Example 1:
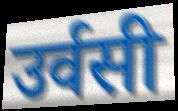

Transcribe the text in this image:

उर्वसी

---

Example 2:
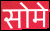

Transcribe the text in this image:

सोमे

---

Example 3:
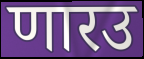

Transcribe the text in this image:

णारउ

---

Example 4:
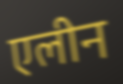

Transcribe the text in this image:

एलीन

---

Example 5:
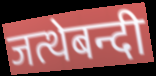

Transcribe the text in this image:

जत्थेबन्दी